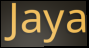
Jaya